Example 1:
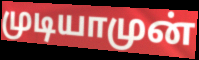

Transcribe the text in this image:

முடியாமுன்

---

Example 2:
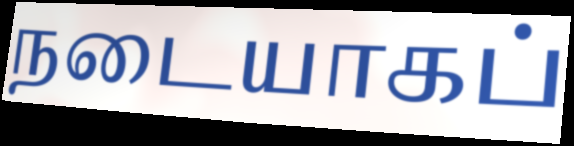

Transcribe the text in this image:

நடையாகப்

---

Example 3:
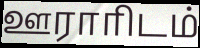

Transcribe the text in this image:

ஊராரிடம்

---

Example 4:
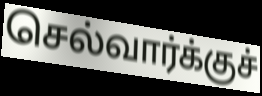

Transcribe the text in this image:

செல்வார்க்குச்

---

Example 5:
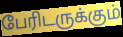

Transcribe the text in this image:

பேரிடருக்கும்